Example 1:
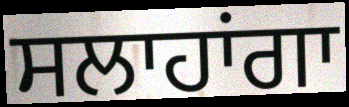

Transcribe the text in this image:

ਸਲਾਹਾਂਗਾ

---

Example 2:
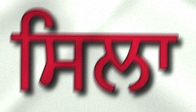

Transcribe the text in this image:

ਸਿਲਾ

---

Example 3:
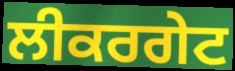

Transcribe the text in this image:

ਲੀਕਰਗੇਟ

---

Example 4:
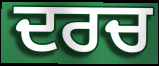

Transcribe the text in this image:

ਦਰਚ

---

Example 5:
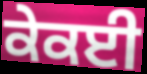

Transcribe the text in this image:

ਕੇਕਈ